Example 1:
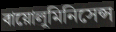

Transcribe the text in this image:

বায়োলুমিনিসেন্স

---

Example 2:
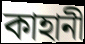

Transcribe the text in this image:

কাহানী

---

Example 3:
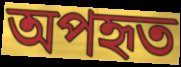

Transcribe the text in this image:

অপহৃত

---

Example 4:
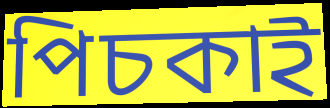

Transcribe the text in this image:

পিচকাই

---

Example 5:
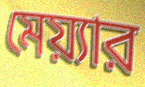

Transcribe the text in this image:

মেয়্যার